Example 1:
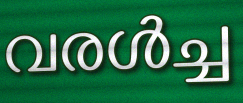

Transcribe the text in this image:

വരൾച്ച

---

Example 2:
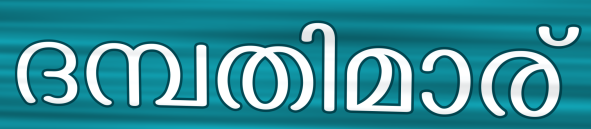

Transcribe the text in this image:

ദമ്പതിമാര്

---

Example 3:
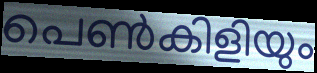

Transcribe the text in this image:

പെൺകിളിയും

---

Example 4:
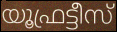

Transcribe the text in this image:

യൂഫ്രട്ടീസ്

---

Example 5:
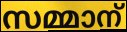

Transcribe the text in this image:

സമ്മാന്